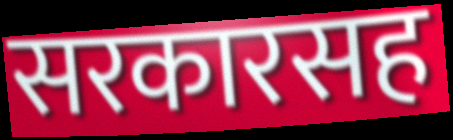
सरकारसह